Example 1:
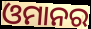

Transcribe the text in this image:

ଓମାନର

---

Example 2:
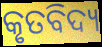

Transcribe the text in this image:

କୃତବିଦ୍ଯ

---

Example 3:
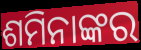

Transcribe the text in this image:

ଶମିନାଙ୍କର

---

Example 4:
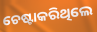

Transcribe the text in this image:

ଚେଷ୍ଟାକରିଥିଲେ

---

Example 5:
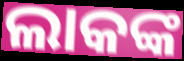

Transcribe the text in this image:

ଲାକଙ୍କ